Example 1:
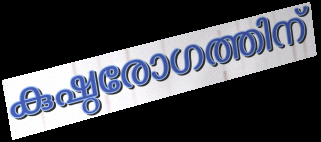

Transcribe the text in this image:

കുഷ്ഠരോഗത്തിന്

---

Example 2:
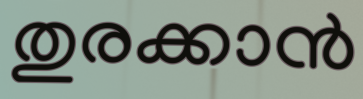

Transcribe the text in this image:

തുരക്കാൻ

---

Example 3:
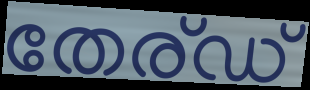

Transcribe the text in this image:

തേര്ഡ്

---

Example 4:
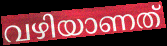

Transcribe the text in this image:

വഴിയാണത്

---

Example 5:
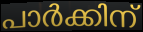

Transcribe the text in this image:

പാർക്കിന്